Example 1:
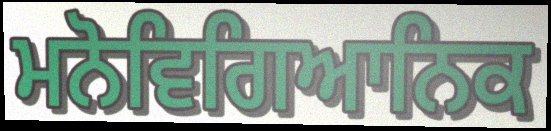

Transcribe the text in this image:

ਮਨੋਵਿਗਿਆਨਿਕ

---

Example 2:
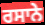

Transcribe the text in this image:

ਰਸਾਨੇ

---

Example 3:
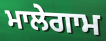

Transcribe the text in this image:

ਮਾਲੇਗਾਮ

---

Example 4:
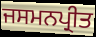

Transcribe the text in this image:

ਜਸਮਨਪ੍ਰੀਤ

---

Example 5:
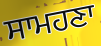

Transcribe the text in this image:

ਸਾਮਹਣਾ